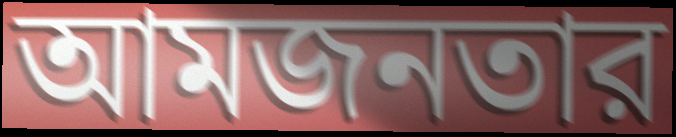
আমজনতার